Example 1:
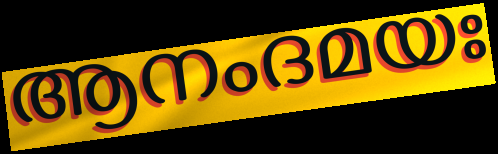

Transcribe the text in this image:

ആനംദമയഃ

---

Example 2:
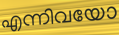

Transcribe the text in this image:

എന്നിവയോ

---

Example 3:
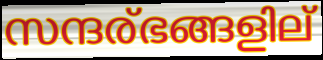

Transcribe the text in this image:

സന്ദര്ഭങ്ങളില്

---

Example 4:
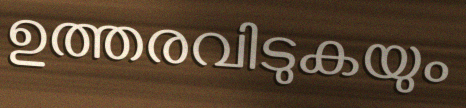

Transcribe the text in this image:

ഉത്തരവിടുകയും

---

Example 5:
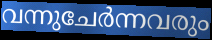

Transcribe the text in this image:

വന്നുചേർന്നവരും